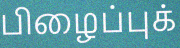
பிழைப்புக்